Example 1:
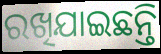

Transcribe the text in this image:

ରଖିଯାଇଛନ୍ତି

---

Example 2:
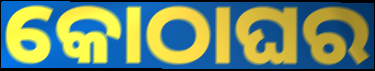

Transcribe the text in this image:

କୋଠାଘର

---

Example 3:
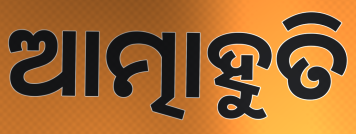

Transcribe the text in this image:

ଆତ୍ମାହୁତି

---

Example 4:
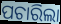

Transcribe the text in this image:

ପଚାରିଲା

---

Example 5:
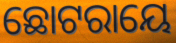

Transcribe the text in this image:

ଛୋଟରାୟେ